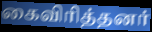
கைவிரித்தனர்